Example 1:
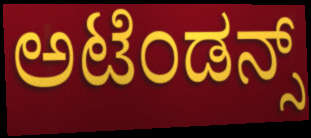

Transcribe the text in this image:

ಅಟೆಂಡನ್ಸ್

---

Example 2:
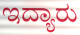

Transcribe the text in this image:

ಇದ್ಯಾರು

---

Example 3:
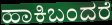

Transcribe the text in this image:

ಹಾಕಿಬಂದರೆ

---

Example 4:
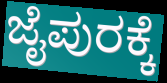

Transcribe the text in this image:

ಜೈಪುರಕ್ಕೆ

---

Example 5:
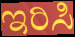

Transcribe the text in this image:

ಇರಿಸಿ